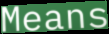
Means